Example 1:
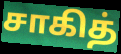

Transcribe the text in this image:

சாகித்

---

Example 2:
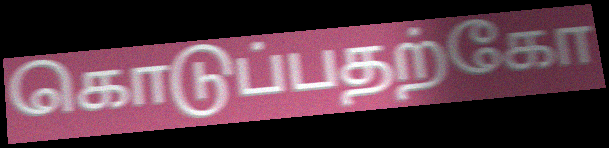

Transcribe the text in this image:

கொடுப்பதற்கோ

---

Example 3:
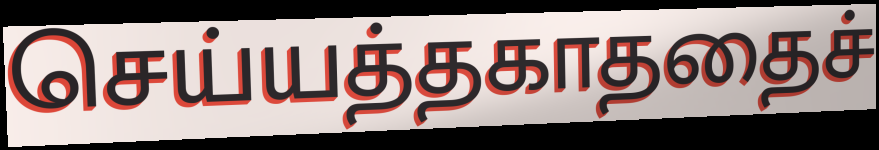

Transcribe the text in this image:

செய்யத்தகாததைச்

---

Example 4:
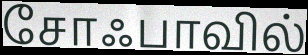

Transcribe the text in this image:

சோஃபாவில்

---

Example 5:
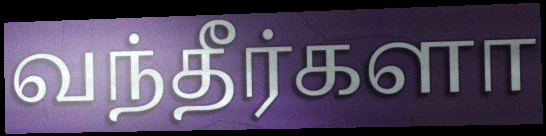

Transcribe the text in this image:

வந்தீர்களா